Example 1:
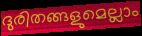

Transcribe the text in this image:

ദുരിതങ്ങളുമെല്ലാം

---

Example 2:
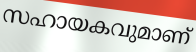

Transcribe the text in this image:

സഹായകവുമാണ്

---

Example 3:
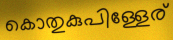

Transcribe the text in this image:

കൊതുകുപിള്ളേര്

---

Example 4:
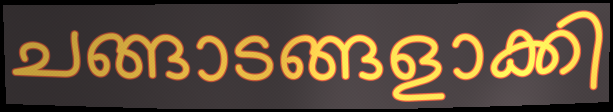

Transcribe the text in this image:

ചങ്ങാടങ്ങളാക്കി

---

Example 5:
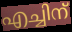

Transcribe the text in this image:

എച്ചിന്